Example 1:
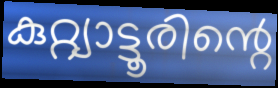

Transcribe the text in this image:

കുറ്റ്യാട്ടൂരിന്റെ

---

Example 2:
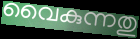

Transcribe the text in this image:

വൈകുന്നതു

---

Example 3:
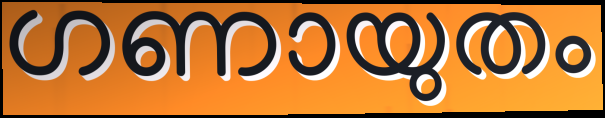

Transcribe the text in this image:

ഗണായുതം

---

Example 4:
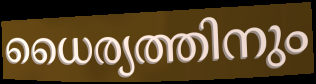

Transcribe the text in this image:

ധൈര്യത്തിനും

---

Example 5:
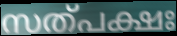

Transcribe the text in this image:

സത്പക്ഷഃ